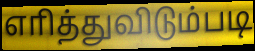
எரித்துவிடும்படி